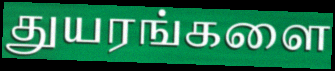
துயரங்களை